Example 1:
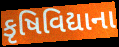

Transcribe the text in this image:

કૃષિવિદ્યાના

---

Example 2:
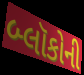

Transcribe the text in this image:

બ્લૉકોની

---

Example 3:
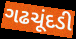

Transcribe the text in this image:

ગઢચૂંદડી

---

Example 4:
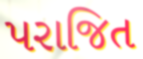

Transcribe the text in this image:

પરાજિત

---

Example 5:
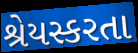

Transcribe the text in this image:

શ્રેયસ્કરતા